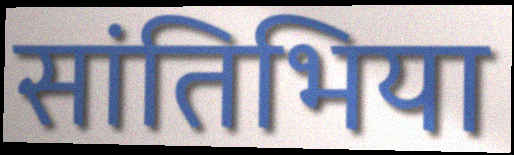
सांतिभिया